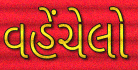
વહેંચેલો